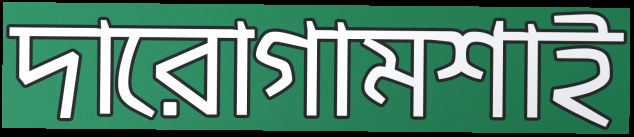
দারোগামশাই